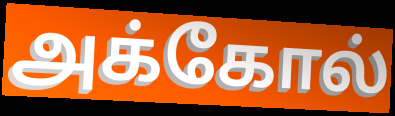
அக்கோல்